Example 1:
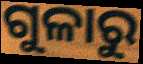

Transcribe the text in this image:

ଗୁଳାରୁ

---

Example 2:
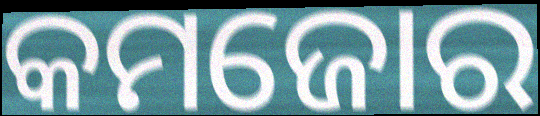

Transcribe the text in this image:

କମଜୋର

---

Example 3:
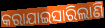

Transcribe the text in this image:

କରାଯାଇସାରିଲାଣି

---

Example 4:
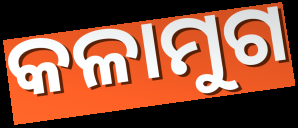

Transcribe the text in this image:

କଳାମୁଗ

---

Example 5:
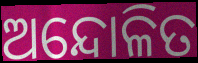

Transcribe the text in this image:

ଅନ୍ଦୋଳିତ